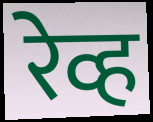
रेव्ह